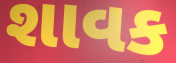
શાવક